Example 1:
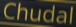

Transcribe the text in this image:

Chudal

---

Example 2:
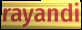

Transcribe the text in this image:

rayandi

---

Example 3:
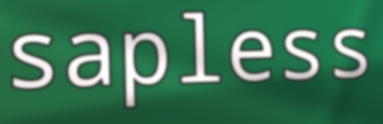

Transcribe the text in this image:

sapless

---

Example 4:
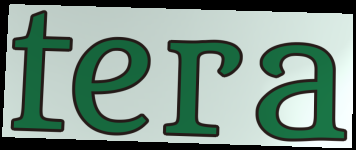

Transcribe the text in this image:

tera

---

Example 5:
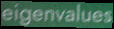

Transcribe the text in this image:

eigenvalues